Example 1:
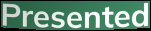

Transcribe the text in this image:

Presented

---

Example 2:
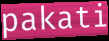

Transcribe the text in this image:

pakati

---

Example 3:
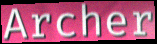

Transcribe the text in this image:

Archer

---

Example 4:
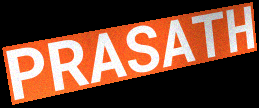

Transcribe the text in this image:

PRASATH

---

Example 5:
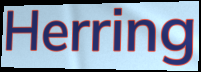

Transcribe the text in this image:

Herring